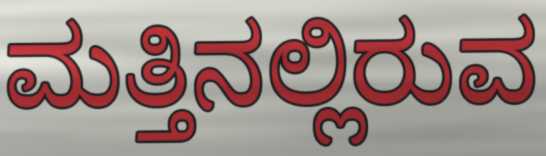
ಮತ್ತಿನಲ್ಲಿರುವ